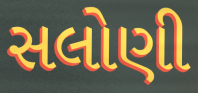
સલોણી